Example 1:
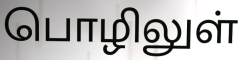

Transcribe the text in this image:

பொழிலுள்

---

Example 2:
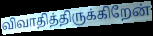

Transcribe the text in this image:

விவாதித்திருக்கிறேன்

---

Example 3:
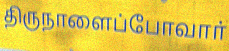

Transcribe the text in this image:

திருநாளைப்போவார்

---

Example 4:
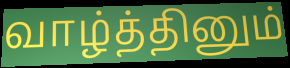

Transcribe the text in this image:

வாழ்த்தினும்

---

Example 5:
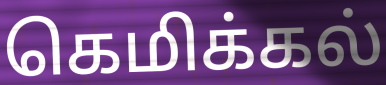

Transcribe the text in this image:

கெமிக்கல்